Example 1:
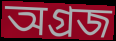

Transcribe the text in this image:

অগ্ৰজ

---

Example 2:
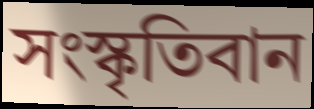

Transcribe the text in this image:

সংস্কৃতিবান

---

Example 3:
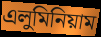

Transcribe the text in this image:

এলুমিনিয়াম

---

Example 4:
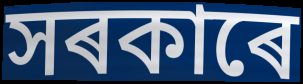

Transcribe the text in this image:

সৰকাৰে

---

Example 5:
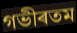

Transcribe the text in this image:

গভীৰতম